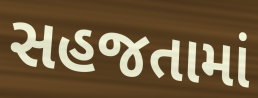
સહજતામાં